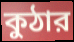
কুঠার